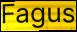
Fagus